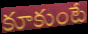
కూకుంటే